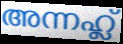
അന്നഹ്ല്